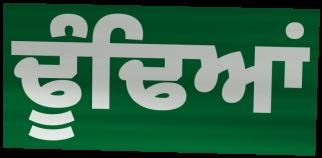
ਢੂੰਢਿਆਂ